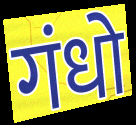
गंधो